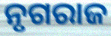
ନୃଗରାଜ